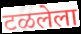
टळलेला